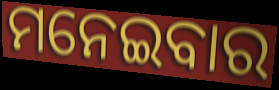
ମନେଇବାର